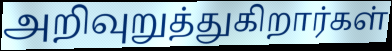
அறிவுறுத்துகிறார்கள்